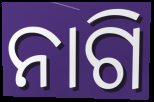
ନାଗି